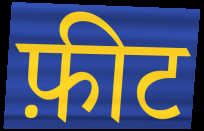
फ़ीट